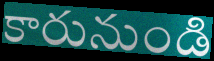
కారునుండి